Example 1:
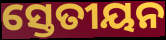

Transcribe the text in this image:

ସ୍ତେତୀୟନ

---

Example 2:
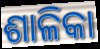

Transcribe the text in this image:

ଶାଳିକା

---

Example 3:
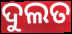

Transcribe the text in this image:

ଦୁଲତ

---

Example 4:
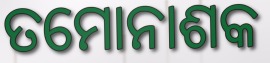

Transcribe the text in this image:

ତମୋନାଶକ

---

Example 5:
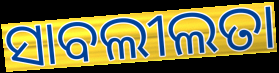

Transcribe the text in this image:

ସାବଲୀଲତା